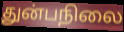
துன்பநிலை